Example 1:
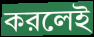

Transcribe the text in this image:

করলেই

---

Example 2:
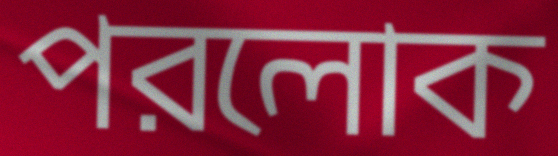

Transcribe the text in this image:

পরলোক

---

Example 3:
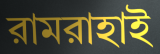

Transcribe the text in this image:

রামরাহাই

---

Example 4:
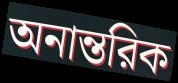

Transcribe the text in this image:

অনান্তরিক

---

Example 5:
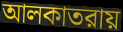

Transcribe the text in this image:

আলকাতরায়